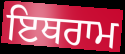
ਇਥਰਾਮ